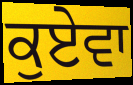
ਕੁਏਵਾ